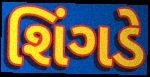
શિંગડે